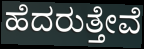
ಹೆದರುತ್ತೇವೆ